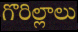
గొరిల్లాలు